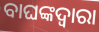
ବାଘଙ୍କଦ୍ୱାରା